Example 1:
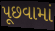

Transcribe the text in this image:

પૂછવામાં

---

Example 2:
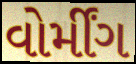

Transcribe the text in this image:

વોર્મીંગ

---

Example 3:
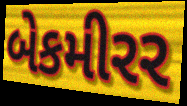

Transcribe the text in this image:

બેકમીરર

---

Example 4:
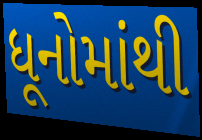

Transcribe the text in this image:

ધૂનોમાંથી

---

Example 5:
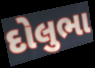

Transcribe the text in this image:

દોલુભા